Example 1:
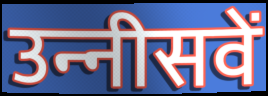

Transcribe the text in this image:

उन्नीसवें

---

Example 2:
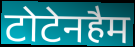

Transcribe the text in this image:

टोटेनहैम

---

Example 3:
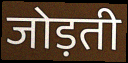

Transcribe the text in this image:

जोड़ती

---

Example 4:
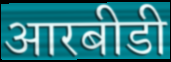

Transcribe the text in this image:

आरबीडी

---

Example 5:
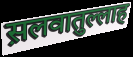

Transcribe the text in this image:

स़लवातुल्लाह